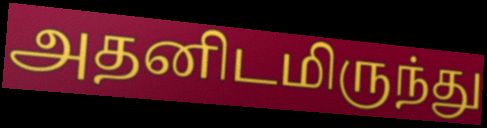
அதனிடமிருந்து